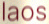
laos